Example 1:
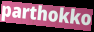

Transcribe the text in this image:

parthokko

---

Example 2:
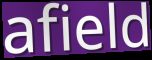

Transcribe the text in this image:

afield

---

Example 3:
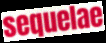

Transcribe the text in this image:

sequelae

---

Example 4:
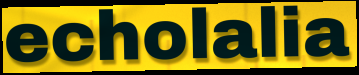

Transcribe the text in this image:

echolalia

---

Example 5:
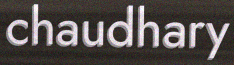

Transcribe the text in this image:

chaudhary